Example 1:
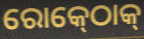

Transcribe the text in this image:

ରୋକ୍‍ଠୋକ୍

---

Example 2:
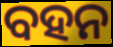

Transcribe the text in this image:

ବହନ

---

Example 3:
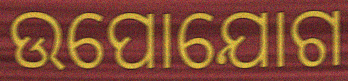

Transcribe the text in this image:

ଉପୋଯୋଗ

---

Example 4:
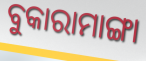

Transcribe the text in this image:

ବୁକାରାମାଙ୍ଗା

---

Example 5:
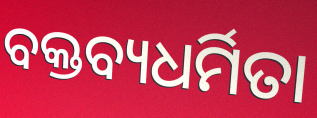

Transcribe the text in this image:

ବକ୍ତବ୍ୟଧର୍ମିତା